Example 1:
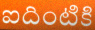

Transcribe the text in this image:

ఐదింటికి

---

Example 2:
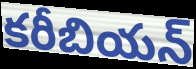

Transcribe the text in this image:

కరీబియన్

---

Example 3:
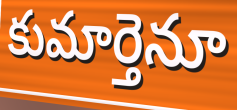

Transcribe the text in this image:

కుమార్తెనూ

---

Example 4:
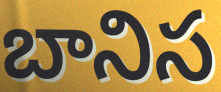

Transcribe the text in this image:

బానిస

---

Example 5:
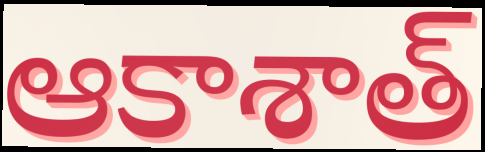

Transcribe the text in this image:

ఆకాశాత్